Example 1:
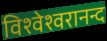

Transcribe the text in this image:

विश्वेश्वरानन्द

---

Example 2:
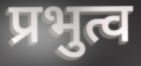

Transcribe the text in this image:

प्रभुत्व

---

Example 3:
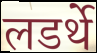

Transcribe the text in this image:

लडर्थे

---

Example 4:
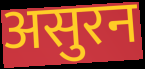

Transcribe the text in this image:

असुरन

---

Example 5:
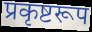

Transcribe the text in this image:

प्रकृष्टरूप